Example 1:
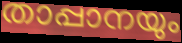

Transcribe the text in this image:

താപ്പാനയും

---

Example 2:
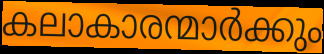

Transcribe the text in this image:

കലാകാരന്മാർക്കും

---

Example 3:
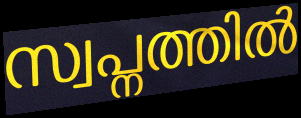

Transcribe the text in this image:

സ്വപ്നത്തിൽ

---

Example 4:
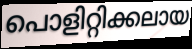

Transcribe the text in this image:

പൊളിറ്റിക്കലായ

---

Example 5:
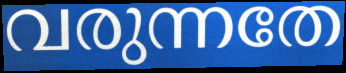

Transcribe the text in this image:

വരുന്നതേ